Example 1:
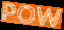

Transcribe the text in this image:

POW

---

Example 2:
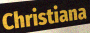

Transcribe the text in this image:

Christiana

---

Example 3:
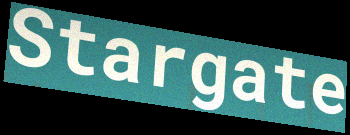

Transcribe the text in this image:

Stargate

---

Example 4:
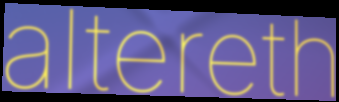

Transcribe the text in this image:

altereth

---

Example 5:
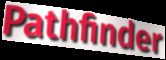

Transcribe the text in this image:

Pathfinder